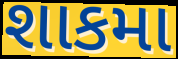
શાકમા